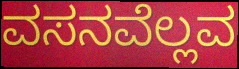
ವಸನವೆಲ್ಲವ